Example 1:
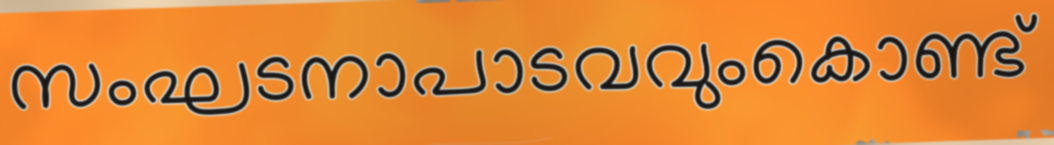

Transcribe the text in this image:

സംഘടനാപാടവവുംകൊണ്ട്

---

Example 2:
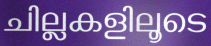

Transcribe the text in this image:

ചില്ലകളിലൂടെ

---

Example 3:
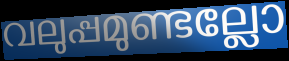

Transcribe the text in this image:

വലുപ്പമുണ്ടല്ലോ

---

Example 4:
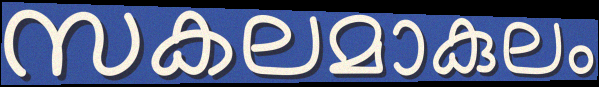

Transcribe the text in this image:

സകലമാകുലം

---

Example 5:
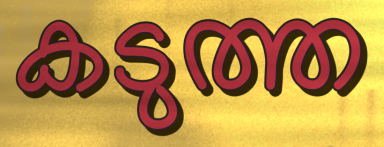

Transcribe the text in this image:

കടുത്ത